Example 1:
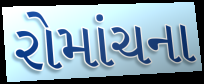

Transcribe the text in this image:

રોમાંચના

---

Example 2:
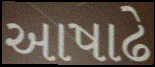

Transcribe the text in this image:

આષાઢે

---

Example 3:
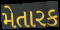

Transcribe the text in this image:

મેતારક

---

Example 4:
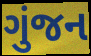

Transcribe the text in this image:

ગુંજન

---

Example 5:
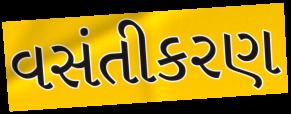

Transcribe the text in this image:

વસંતીકરણ